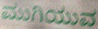
ಮುಗಿಯುವ